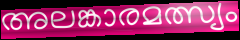
അലങ്കാരമത്സ്യം